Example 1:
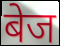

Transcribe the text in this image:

बेज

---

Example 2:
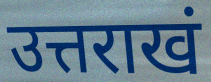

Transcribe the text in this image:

उत्तराखं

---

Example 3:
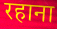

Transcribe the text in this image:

रहाना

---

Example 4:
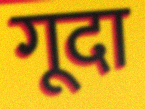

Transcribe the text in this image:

गूदा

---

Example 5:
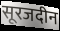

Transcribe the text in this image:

सूरजदीन